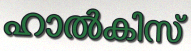
ഹാൽകിസ്